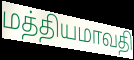
மத்தியமாவதி